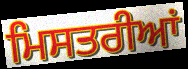
ਮਿਸਤਰੀਆਂ